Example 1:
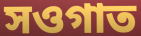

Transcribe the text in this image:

সওগাত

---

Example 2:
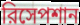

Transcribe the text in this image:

রিসেপশান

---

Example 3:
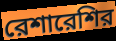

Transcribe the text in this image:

রেশারেশির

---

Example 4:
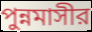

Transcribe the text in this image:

পুন্নমাসীর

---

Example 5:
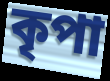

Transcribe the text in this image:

কৃপা